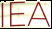
IEA